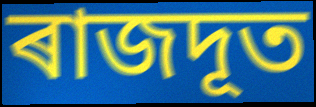
ৰাজদূত